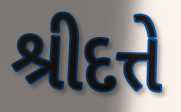
શ્રીદત્તે